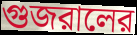
গুজরালের